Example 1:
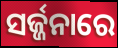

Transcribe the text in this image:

ସର୍ଜ୍ଜନାରେ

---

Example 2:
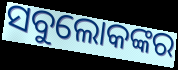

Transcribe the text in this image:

ସବୁଲୋକଙ୍କର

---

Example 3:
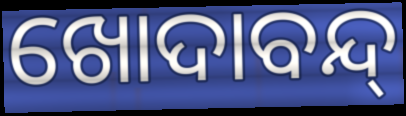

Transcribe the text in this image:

ଖୋଦାବନ୍ଦ୍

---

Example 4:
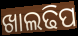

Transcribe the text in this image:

ଖାଲଢିପ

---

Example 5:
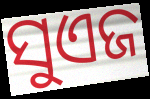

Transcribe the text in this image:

ସୁଏଜ